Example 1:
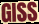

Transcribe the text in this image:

GISS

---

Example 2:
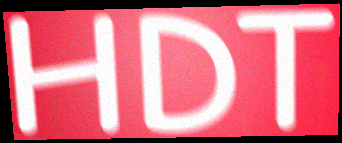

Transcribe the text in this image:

HDT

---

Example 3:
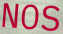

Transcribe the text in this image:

NOS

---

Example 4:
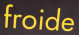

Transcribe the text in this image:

froide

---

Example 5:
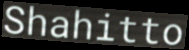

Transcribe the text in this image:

Shahitto